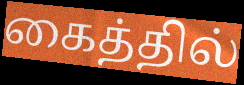
கைத்தில்